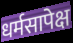
धर्मसापेक्ष